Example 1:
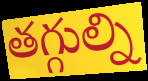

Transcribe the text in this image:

తగ్గుల్ని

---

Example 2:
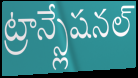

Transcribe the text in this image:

ట్రాన్స్లేషనల్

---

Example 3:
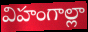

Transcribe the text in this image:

విహంగాల్లా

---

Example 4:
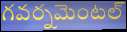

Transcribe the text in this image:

గవర్నమెంటల్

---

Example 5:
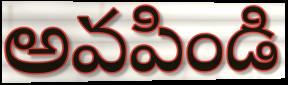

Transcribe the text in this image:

అవపిండి